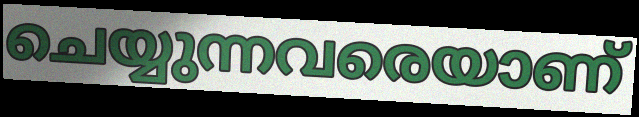
ചെയ്യുന്നവരെയാണ്